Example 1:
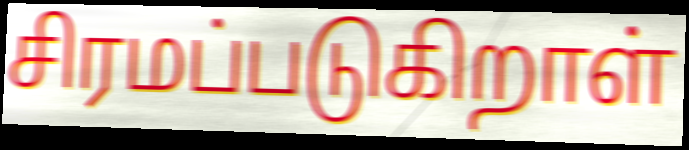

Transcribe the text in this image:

சிரமப்படுகிறாள்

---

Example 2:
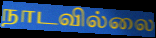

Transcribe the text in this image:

நாடவில்லை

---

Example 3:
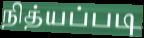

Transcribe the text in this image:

நித்யப்படி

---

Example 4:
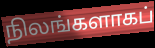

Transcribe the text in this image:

நிலங்களாகப்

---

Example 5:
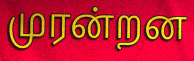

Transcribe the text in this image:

முரன்றன